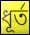
ধূর্ত